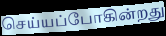
செய்யப்போகின்றது